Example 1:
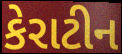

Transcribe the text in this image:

કેરાટીન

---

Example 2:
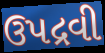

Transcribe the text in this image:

ઉપદ્રવી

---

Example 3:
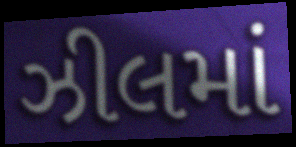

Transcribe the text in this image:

ઝીલમાં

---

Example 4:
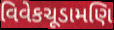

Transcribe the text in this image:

વિવેકચૂડામણિ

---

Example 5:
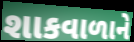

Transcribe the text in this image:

શાકવાળાને